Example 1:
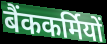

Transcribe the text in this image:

बैंककर्मियों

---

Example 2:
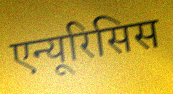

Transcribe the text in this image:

एन्यूरिसिस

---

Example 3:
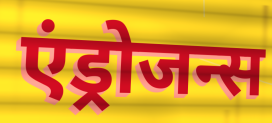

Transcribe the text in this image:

एंड्रोजन्स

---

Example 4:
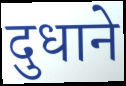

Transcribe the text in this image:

दुधाने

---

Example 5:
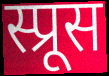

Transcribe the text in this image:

स्प्रूस